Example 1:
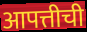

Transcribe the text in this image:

आपत्तीची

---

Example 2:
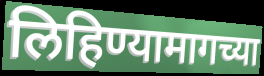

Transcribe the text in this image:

लिहिण्यामागच्या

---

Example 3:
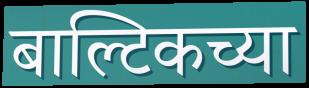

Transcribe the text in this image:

बाल्टिकच्या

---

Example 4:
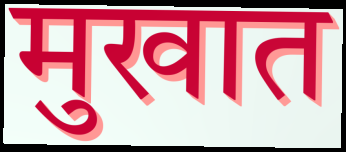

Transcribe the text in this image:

मुखात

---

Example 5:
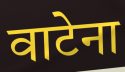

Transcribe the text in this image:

वाटेना